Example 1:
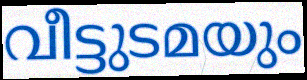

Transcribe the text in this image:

വീട്ടുടമയും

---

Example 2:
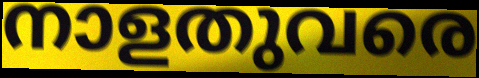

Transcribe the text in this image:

നാളതുവരെ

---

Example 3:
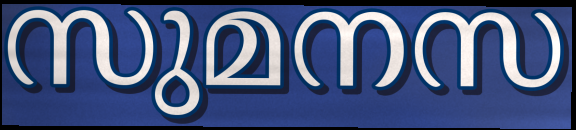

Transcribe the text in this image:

സുമനസ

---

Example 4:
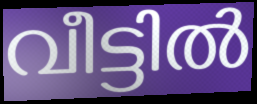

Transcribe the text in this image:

വീട്ടിൽ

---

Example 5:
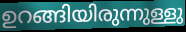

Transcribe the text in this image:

ഉറങ്ങിയിരുന്നുള്ളു